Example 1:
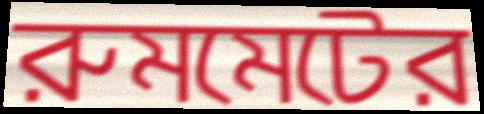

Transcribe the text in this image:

রুমমেটের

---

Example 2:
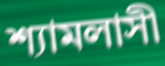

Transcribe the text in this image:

শ্যামলাসী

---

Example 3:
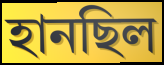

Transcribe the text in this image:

হানছিল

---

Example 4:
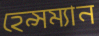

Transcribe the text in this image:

হেন্সম্যান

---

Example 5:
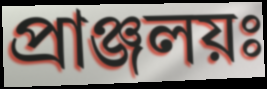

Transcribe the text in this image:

প্রাঞ্জলয়ঃ